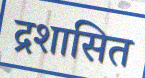
द्रशासित